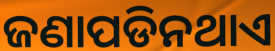
ଜଣାପଡିନଥାଏ